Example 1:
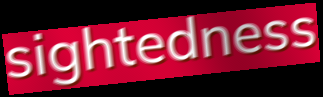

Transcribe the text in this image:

sightedness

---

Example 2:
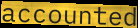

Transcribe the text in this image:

accounted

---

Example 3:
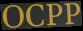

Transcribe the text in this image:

OCPP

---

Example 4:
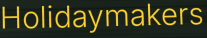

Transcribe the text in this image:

Holidaymakers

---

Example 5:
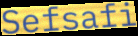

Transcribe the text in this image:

Sefsafi